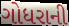
ગોધરાની